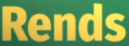
Rends